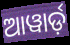
ଆୱାର୍ଡ଼